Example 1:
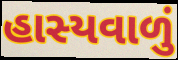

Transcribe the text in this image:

હાસ્યવાળું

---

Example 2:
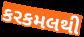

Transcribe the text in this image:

કરકમલથી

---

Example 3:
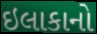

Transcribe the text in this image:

ઇલાકાનો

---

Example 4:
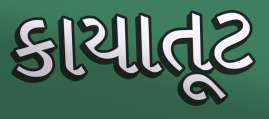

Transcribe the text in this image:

કાયાતૂટ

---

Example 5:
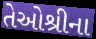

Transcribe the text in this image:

તેઓશ્રીના